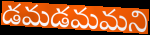
డమడమమని